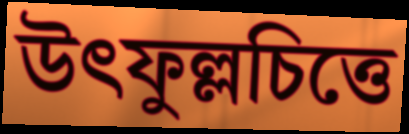
উৎফুল্লচিত্তে